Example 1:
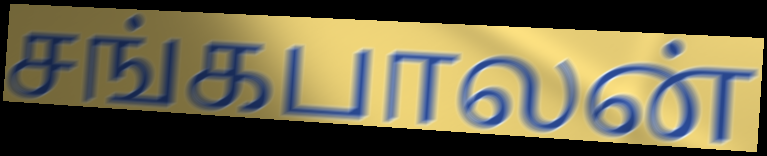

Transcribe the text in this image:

சங்கபாலன்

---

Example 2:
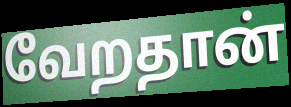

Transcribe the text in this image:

வேறதான்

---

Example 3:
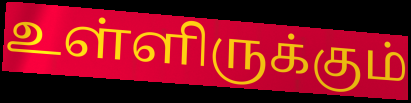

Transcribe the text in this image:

உள்ளிருக்கும்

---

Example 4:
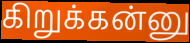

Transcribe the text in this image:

கிறுக்கன்னு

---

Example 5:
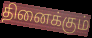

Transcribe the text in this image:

தினைக்கும்